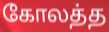
கோலத்த